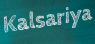
Kalsariya